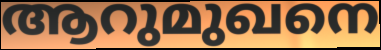
ആറുമുഖനെ